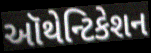
ઑથેન્ટિકેશન